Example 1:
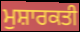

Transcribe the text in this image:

ਮੁਸ਼ਾਰਕਤੀ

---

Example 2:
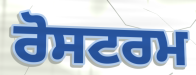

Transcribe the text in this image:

ਰੋਸਟਰਮ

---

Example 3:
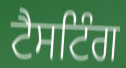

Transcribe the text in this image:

ਟੈਸਟਿੰਗ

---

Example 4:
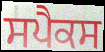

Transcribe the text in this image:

ਸਪੈਕਸ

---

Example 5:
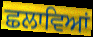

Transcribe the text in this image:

ਛਲਾਵਿਆਂ